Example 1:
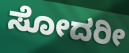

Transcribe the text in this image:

ಸೋದರೀ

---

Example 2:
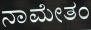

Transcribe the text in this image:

ನಾಮೇತಂ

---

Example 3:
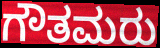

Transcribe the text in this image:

ಗೌತಮರು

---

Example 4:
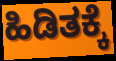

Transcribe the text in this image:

ಹಿಡಿತಕ್ಕೆ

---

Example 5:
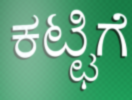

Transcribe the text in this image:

ಕಟ್ಟಿಗೆ